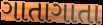
ગાતાગાતા